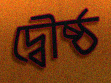
দ্বৌষ্ঠ